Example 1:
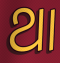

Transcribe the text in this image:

ଥା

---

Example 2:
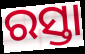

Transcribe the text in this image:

ରସ୍ତା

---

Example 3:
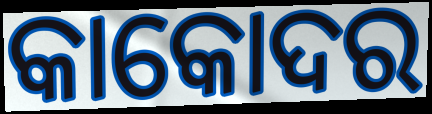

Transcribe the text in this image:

କାକୋଦର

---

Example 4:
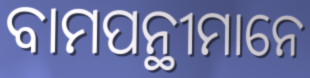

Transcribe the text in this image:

ବାମପନ୍ଥୀମାନେ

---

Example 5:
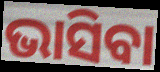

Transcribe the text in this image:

ଭାସିବା